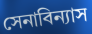
সেনাবিন্যাস